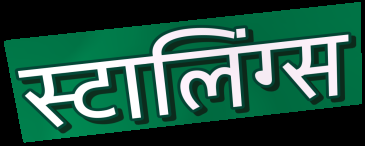
स्टालिंग्स